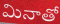
మినాతో